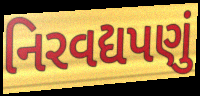
નિરવદ્યપણું